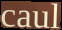
caul